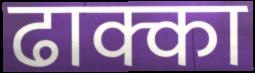
ढाक्का